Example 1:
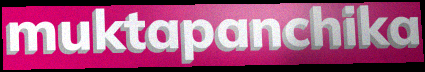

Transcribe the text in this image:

muktapanchika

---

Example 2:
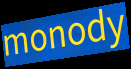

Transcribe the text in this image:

monody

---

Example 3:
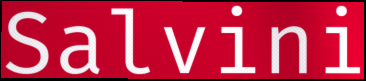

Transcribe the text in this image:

Salvini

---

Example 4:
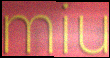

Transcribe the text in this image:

miu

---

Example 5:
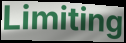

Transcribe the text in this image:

Limiting